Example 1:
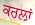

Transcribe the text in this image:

ਕਰਲਾਂ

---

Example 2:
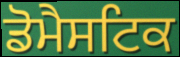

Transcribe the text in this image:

ਡੋਮੈਸਟਿਕ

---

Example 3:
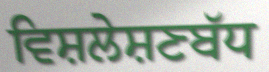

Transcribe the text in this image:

ਵਿਸ਼ਲੇਸ਼ਣਬੱਧ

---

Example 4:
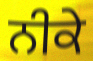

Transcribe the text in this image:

ਨੀਕੇ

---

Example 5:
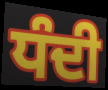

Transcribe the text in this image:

ਧੰਦੀ